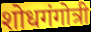
शोधगंगोत्री